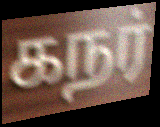
கநர்